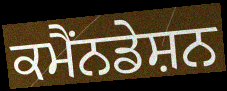
ਕਮੈਂਨਡੇਸ਼ਨ